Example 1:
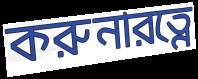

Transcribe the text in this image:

করুনারত্নে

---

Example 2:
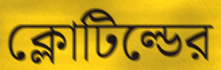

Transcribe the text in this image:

ক্লোটিল্ডের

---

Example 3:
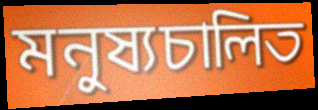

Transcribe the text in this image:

মনুষ্যচালিত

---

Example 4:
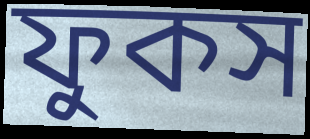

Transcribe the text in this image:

ফুকস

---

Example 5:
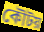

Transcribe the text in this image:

কৌটয়